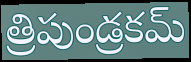
త్రిపుండ్రకమ్